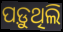
ପଡ଼ୁଥିଲି